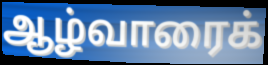
ஆழ்வாரைக்